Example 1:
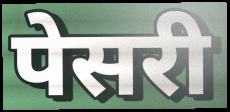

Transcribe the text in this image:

पेसरी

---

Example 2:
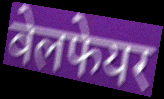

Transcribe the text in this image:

वेलफेयर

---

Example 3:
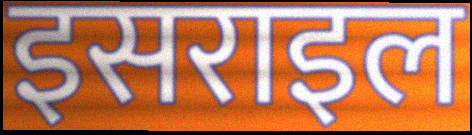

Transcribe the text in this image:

इसराइल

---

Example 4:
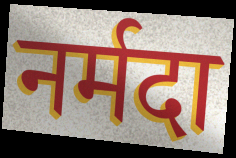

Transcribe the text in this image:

नर्मदा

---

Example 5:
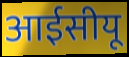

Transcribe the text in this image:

आईसीयू